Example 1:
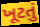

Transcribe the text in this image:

ખૂટતું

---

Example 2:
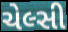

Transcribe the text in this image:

ચેલ્સી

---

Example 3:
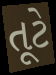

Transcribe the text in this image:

તૂટે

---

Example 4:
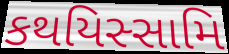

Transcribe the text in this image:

કથયિસ્સામિ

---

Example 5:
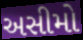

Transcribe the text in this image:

અસીમો